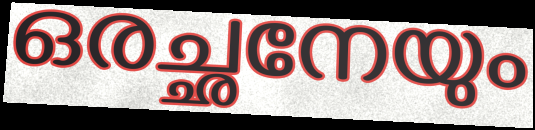
ഒരച്ഛനേയും